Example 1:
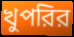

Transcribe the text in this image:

খুপরির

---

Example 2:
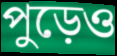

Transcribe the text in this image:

পুড়েও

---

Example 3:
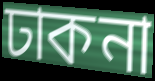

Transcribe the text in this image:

ঢাকনা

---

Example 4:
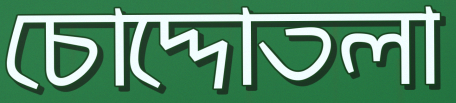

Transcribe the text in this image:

চোদ্দোতলা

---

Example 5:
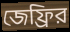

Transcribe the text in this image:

জেফ্রির